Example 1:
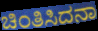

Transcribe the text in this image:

ಚಿಂತಿಸಿದನಾ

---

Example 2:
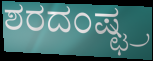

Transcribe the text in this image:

ಶರದಂಷ್ಟ್ರ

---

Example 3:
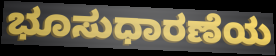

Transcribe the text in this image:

ಭೂಸುಧಾರಣೆಯ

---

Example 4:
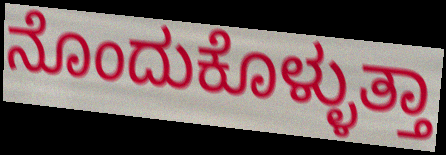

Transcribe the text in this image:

ನೊಂದುಕೊಳ್ಳುತ್ತಾ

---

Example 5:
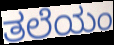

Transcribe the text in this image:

ತಲೆಯಂ